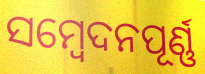
ସମ୍ବେଦନପୂର୍ଣ୍ଣ